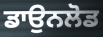
ਡਾਉਨਲੋਡ